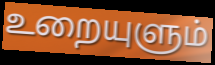
உறையுளும்